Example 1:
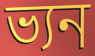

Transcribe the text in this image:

ভ্যন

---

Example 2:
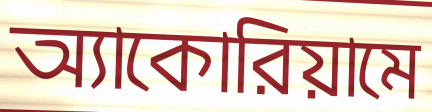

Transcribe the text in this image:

অ্যাকোরিয়ামে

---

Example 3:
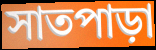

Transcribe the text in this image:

সাতপাড়া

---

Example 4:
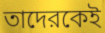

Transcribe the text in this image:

তাদেরকেই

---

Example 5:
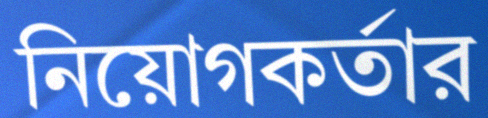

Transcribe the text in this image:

নিয়োগকর্তার